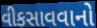
વીકસાવવાનો